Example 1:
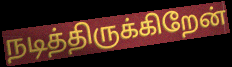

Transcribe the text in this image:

நடித்திருக்கிறேன்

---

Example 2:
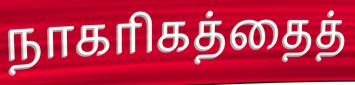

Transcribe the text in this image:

நாகரிகத்தைத்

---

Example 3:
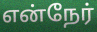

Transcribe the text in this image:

என்நேர்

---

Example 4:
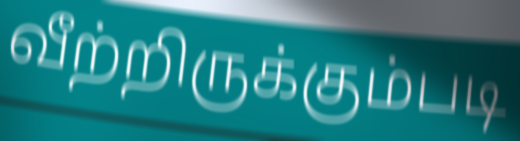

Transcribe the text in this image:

வீற்றிருக்கும்படி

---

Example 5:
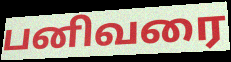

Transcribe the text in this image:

பனிவரை